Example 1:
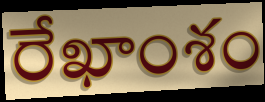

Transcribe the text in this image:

రేఖాంశం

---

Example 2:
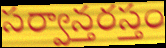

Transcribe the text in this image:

సర్వాన్తరస్తం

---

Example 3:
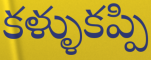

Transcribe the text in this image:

కళ్ళుకప్పి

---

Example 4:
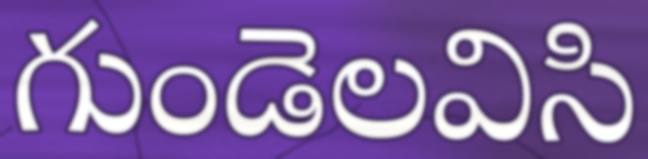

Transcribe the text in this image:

గుండెలవిసి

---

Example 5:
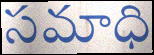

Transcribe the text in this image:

సమాధి